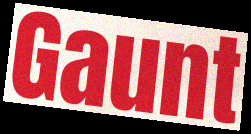
Gaunt